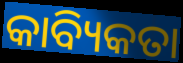
କାବ୍ୟିକତା